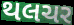
થલચર